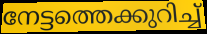
നേട്ടത്തെക്കുറിച്ച്